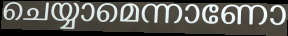
ചെയ്യാമെന്നാണോ